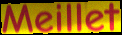
Meillet